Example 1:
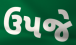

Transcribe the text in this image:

ઉપજે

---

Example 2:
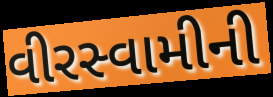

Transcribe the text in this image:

વીરસ્વામીની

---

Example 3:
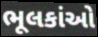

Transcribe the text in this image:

ભૂલકાંઓ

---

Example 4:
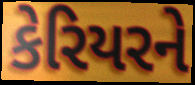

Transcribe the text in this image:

કેરિયરને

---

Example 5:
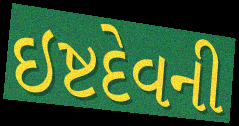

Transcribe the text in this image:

ઇષ્ટદેવની